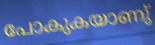
പോകുകയാണു്